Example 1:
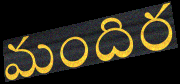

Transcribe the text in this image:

మందిర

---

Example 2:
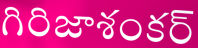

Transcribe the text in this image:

గిరిజాశంకర్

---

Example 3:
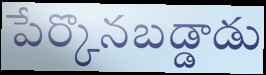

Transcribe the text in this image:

పేర్కొనబడ్డాడు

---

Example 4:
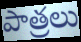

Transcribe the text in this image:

పాత్రలు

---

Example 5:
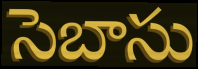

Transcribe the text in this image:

సెబాసు